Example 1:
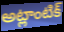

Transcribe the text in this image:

అట్లాంటిక్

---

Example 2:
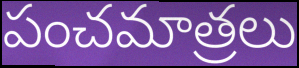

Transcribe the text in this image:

పంచమాత్రలు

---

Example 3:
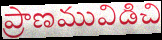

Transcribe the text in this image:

ప్రాణమువిడిచి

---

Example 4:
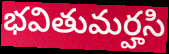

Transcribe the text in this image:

భవితుమర్హసి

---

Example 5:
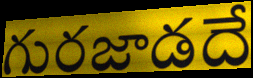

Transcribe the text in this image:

గురజాడదే